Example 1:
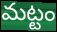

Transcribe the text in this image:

మట్టం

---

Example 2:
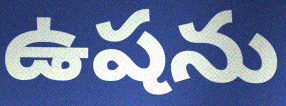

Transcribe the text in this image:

ఉషను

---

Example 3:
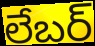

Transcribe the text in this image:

లేబర్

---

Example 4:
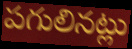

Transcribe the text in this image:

పగులినట్లు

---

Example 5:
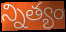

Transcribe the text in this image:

న్నిత్యం